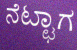
ನೆಟ್ಟಾಗ